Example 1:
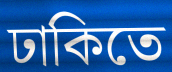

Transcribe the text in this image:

ঢাকিতে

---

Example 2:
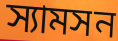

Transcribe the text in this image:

স্যামসন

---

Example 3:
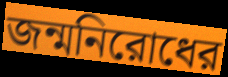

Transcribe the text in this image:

জন্মনিরোধের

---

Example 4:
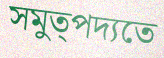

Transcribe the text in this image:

সমুত্পদ্যতে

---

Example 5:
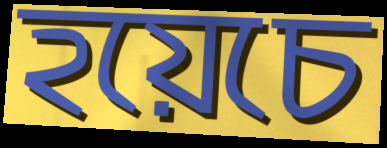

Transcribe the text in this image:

হয়েচে